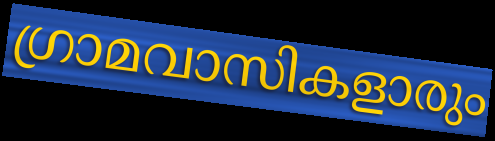
ഗ്രാമവാസികളാരും